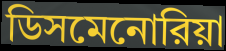
ডিসমেনোরিয়া